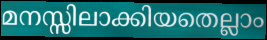
മനസ്സിലാക്കിയതെല്ലാം